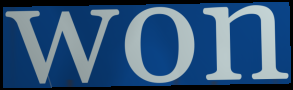
won